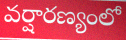
వర్షారణ్యంలో